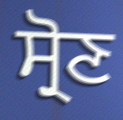
ਸ੍ਰੋਣ